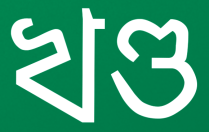
খণ্ড